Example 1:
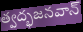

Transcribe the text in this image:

త్వద్భజనవాన్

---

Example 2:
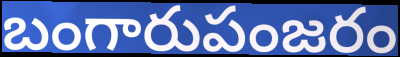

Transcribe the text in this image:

బంగారుపంజరం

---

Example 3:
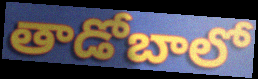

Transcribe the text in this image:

తాడోబాలో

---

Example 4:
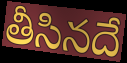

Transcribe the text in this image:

తీసినదే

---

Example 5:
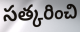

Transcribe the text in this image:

సత్కరించి